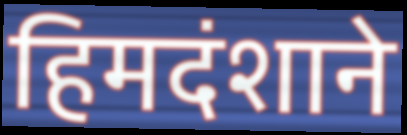
हिमदंशाने